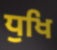
ਧੁਖਿ